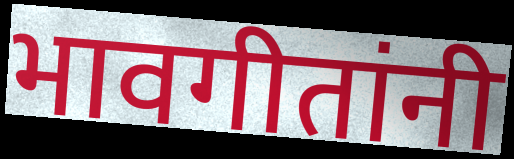
भावगीतांनी